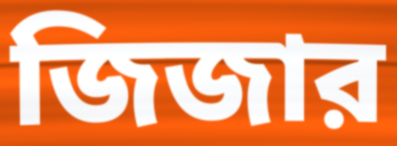
জিজার